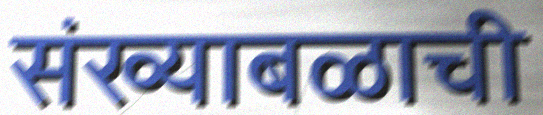
संख्याबळाची